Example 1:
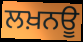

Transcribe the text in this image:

ਲਖ਼ਨਊ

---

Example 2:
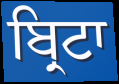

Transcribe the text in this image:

ਬ੍ਰਿਟਾ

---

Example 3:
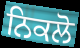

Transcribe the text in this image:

ਨਿਕਲੋ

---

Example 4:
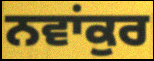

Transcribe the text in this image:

ਨਵਾਂਕੁਰ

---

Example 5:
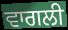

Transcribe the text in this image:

ਵਾਗਲੀ